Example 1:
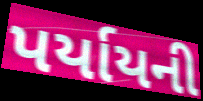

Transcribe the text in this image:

પર્યાયની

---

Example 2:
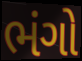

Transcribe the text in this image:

ભંગો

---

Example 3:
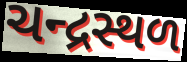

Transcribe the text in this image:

ચન્દ્રસ્થળ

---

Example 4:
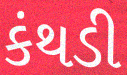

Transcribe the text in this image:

કંથડી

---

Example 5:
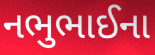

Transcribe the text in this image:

નભુભાઈના